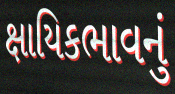
ક્ષાયિકભાવનું